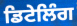
ਡਿਟੇਲਿੰਗ